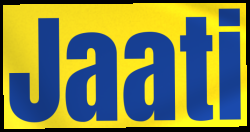
Jaati